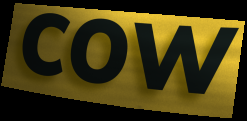
cow